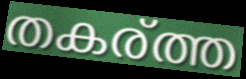
തകര്ത്ത